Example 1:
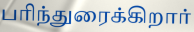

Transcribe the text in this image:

பரிந்துரைக்கிறார்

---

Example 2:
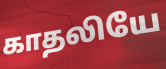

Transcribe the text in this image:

காதலியே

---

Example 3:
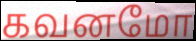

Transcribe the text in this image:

கவனமோ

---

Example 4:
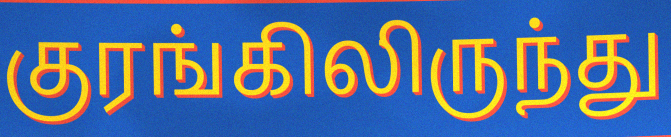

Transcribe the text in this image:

குரங்கிலிருந்து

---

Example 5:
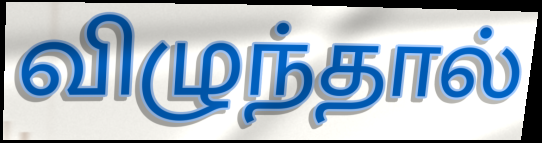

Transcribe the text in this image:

விழுந்தால்